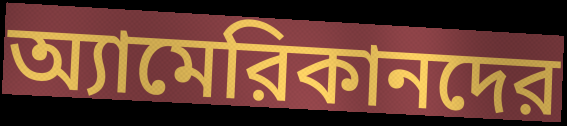
অ্যামেরিকানদের